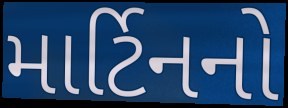
માર્ટિનનો